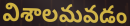
విశాలమవడం